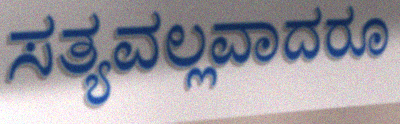
ಸತ್ಯವಲ್ಲವಾದರೂ